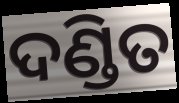
ଦଣ୍ଡିତ